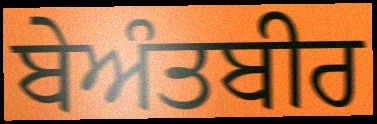
ਬੇਅੰਤਬੀਰ